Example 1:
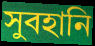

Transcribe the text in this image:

সুবহানি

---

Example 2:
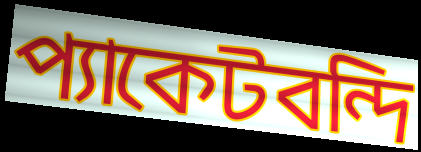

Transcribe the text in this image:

প্যাকেটবন্দি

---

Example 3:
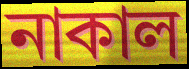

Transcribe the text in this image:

নাকাল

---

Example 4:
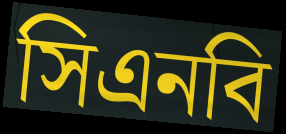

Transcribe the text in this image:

সিএনবি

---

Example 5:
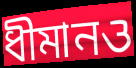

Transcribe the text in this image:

ধীমানও